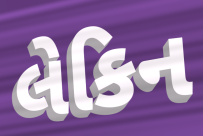
લેકિન